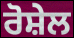
ਰੋਸ਼ੇਲ